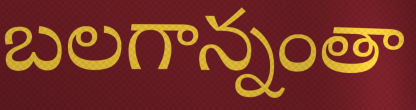
బలగాన్నంతా